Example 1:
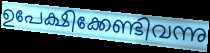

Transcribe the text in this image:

ഉപേക്ഷിക്കേണ്ടിവന്നു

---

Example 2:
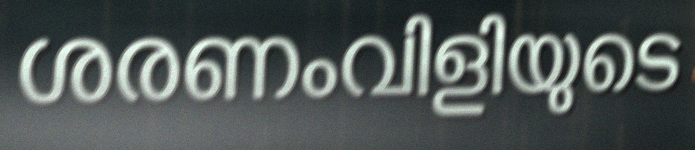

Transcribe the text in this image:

ശരണംവിളിയുടെ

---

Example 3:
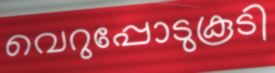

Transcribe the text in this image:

വെറുപ്പോടുകൂടി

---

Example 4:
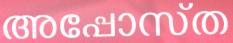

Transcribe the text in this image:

അപ്പോസ്‌ത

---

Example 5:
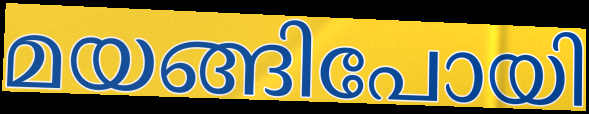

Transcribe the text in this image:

മയങ്ങിപോയി